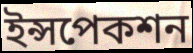
ইন্সপেকশন